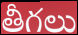
తీగలు